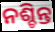
ନଶ୍ଚିନ୍ତ